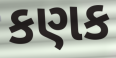
કણક